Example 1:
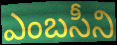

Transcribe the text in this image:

ఎంబసీని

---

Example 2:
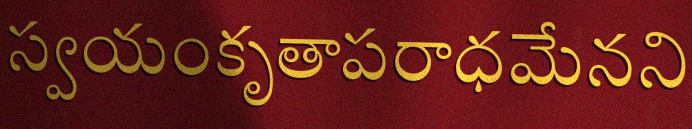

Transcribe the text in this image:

స్వయంకృతాపరాధమేనని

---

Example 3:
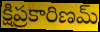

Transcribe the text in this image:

క్షిప్రకారిణమ్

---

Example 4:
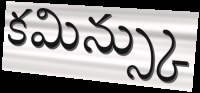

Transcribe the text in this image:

కమిన్స్కు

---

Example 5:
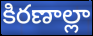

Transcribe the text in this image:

కిరణాల్లా